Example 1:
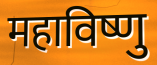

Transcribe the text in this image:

महाविष्णु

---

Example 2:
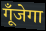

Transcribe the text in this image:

गूँजेगा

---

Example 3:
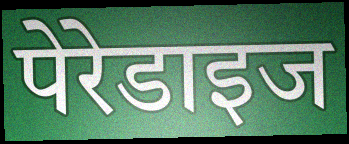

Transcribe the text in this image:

पेरेडाइज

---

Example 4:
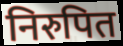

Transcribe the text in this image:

निरुपित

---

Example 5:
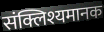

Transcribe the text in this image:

संक्लिश्यमानक